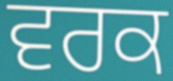
ਵਰਕ